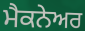
ਮੈਕਨੇਅਰ